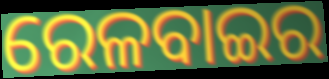
ରେଳବାଇର